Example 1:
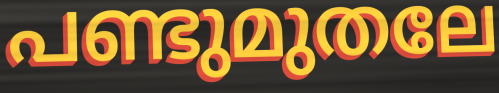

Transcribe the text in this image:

പണ്ടുമുതലേ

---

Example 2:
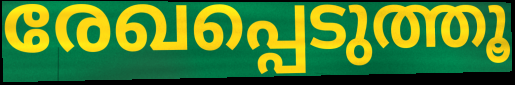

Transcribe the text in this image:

രേഖപ്പെടുത്തൂ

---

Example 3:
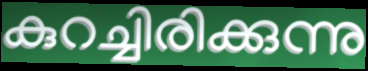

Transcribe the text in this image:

കുറച്ചിരിക്കുന്നു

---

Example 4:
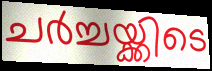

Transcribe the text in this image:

ചർച്ചയ്ക്കിടെ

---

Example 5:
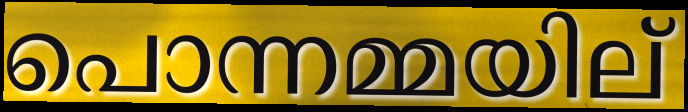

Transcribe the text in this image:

പൊന്നമ്മയില്